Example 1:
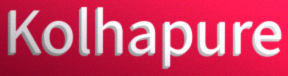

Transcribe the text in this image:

Kolhapure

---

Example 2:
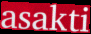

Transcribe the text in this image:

asakti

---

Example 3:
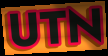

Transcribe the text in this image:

UTN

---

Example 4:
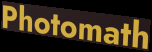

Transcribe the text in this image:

Photomath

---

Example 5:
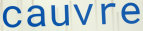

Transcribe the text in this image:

cauvre